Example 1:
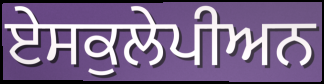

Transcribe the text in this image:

ਏਸਕੁਲੇਪੀਅਨ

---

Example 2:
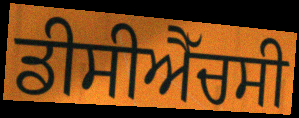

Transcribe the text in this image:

ਡੀਸੀਐੱਚਸੀ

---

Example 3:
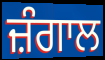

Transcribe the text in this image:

ਜ਼ੰਗਾਲ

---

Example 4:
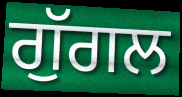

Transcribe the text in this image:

ਗੁੱਗਲ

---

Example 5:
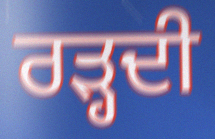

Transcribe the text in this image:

ਰੜ੍ਹਦੀ